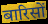
बारिसों